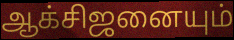
ஆக்சிஜனையும்